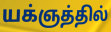
யக்ஞத்தில்